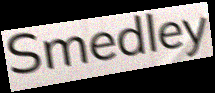
Smedley